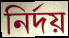
নিৰ্দয়